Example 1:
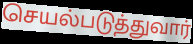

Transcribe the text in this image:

செயல்படுத்துவார்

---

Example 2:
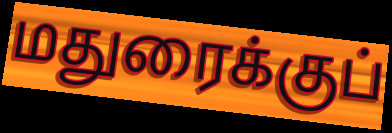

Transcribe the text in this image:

மதுரைக்குப்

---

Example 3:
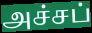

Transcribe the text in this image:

அச்சப்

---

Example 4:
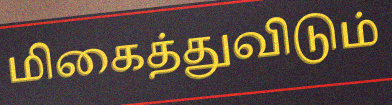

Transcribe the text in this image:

மிகைத்துவிடும்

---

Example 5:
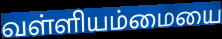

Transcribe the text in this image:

வள்ளியம்மையை